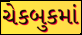
ચેકબુકમાં